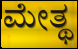
ಮೇತ್ಥ